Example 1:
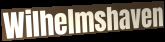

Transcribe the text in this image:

Wilhelmshaven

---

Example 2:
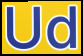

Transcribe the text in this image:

Ud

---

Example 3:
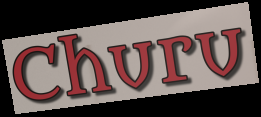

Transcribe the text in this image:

Churu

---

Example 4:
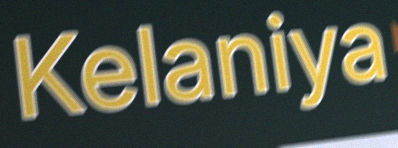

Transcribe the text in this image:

Kelaniya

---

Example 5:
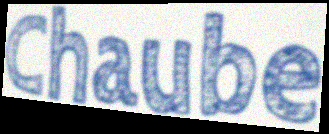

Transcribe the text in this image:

Chaube